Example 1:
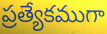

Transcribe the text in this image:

ప్రత్యేకముగా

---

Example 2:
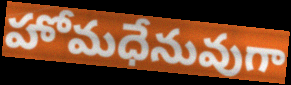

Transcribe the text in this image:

హోమధేనువుగా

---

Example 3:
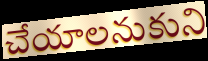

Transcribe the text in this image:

చేయాలనుకుని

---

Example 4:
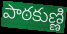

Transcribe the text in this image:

పాఠకుణ్ణి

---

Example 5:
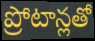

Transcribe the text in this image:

ప్రోటాన్లతో